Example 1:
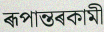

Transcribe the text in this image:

ৰূপান্তৰকামী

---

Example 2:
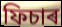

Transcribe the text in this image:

ফিচাৰ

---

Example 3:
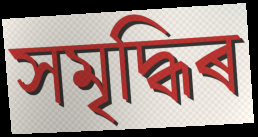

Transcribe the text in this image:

সমৃদ্ধিৰ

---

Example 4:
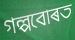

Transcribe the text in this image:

গল্পবোৰত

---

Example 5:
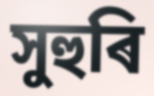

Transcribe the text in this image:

সুহুৰি